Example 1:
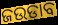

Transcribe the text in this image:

ଜଉଡାବ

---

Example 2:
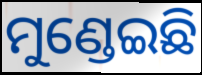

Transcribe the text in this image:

ମୁଣ୍ଡେଇଛି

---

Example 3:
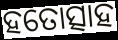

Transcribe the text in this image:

ହତୋତ୍ସାହ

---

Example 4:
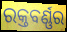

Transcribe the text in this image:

ରକ୍ତବର୍ଣ୍ଣର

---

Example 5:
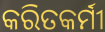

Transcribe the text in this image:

କରିତକର୍ମୀ